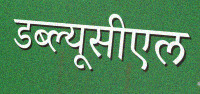
डब्ल्यूसीएल